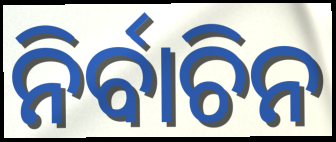
ନିର୍ବାଚିନ